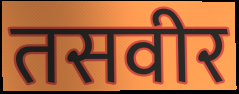
तसवीर